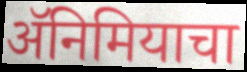
ॲनिमियाचा